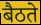
बैठते